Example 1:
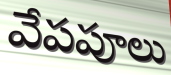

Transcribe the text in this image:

వేపపూలు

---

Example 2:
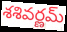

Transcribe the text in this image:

శశివర్ణమ్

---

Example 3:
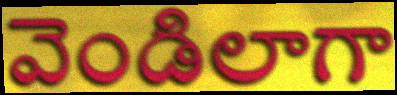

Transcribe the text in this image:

వెండిలాగా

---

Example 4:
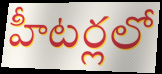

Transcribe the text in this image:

హీటర్లలో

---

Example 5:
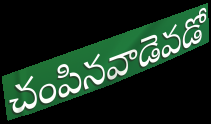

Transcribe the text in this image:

చంపినవాడెవడో